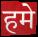
हमे